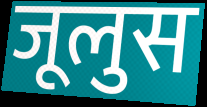
जूलुस